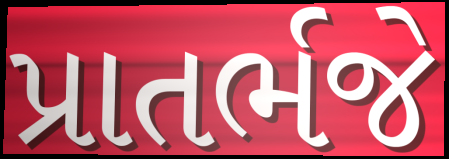
પ્રાતર્ભજે